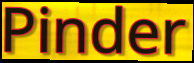
Pinder